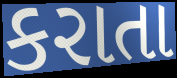
કરાતા